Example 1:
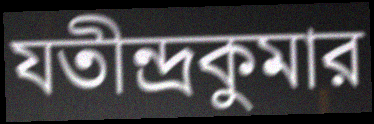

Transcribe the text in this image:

যতীন্দ্রকুমার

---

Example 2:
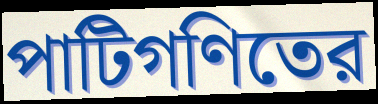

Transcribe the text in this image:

পাটিগণিতের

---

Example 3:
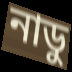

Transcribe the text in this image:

নাডু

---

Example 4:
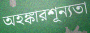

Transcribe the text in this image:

অহঙ্কারশূন্যতা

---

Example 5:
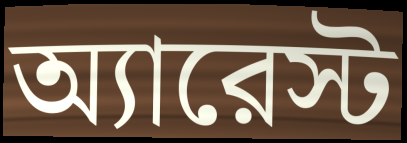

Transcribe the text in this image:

অ্যারেস্ট